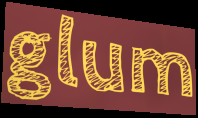
glum